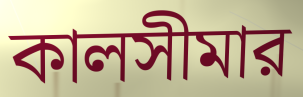
কালসীমার